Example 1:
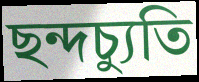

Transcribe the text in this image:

ছন্দচ্যুতি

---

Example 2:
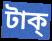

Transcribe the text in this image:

টাক্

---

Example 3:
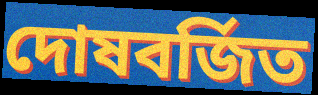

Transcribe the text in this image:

দোষবর্জিত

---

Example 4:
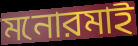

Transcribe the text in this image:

মনোরমাই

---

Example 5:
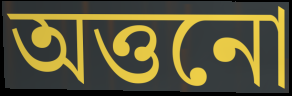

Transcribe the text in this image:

অত্তনো